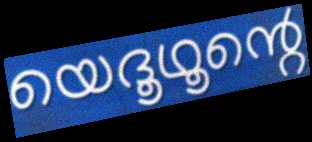
യെദൂഥൂന്റെ